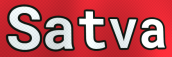
Satva